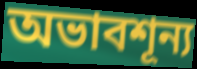
অভাবশূন্য